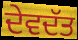
ਦੇਵਦੱਤ